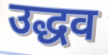
उद्धव